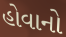
હોવાનો